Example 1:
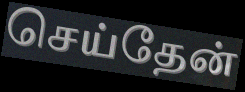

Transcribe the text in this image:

செய்தேன்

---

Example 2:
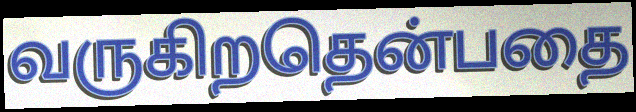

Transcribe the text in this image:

வருகிறதென்பதை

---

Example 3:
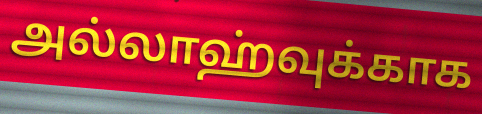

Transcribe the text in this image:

அல்லாஹ்வுக்காக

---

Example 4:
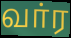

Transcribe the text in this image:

வர்ர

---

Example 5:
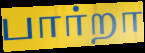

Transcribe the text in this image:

பார்றா